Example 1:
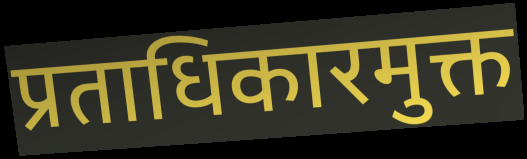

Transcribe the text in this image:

प्रताधिकारमुक्त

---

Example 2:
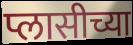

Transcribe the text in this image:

प्लासीच्या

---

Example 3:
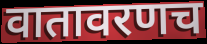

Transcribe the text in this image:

वातावरणच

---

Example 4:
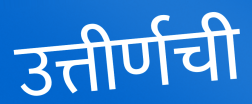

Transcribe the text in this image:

उत्तीर्णची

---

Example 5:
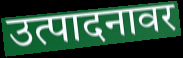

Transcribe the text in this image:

उत्पादनावर